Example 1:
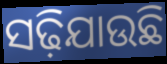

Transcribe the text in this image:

ସଢ଼ିଯାଉଛି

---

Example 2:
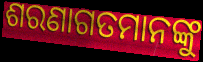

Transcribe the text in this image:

ଶରଣାଗତମାନଙ୍କୁ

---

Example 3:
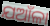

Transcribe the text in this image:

ଯଆଁଳା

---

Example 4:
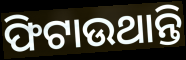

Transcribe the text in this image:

ଫିଟାଉଥାନ୍ତି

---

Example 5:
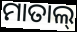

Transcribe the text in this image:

ମାତାଲ୍